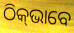
ଠିକ୍‌ଭାବେ